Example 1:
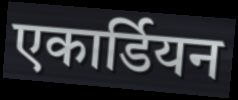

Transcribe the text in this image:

एकार्डियन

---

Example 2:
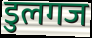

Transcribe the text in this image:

डुलगज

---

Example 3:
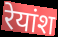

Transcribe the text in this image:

रेयांश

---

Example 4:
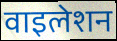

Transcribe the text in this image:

वाइलेशन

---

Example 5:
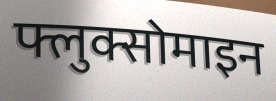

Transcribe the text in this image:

फ्लुक्सोमाइन